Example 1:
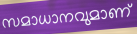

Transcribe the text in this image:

സമാധാനവുമാണ്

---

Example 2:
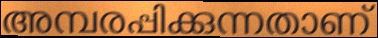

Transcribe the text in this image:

അമ്പരപ്പിക്കുന്നതാണ്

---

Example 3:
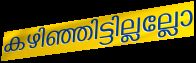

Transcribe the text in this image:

കഴിഞ്ഞിട്ടില്ലല്ലോ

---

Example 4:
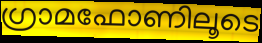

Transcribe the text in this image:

ഗ്രാമഫോണിലൂടെ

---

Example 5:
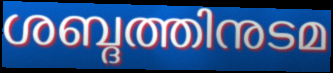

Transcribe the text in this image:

ശബ്ദത്തിനുടമ